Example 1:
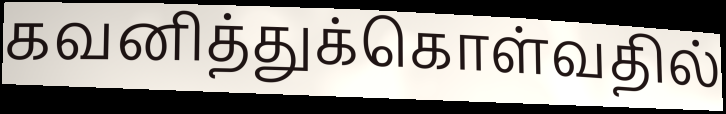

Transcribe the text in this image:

கவனித்துக்கொள்வதில்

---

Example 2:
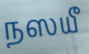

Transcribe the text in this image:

நஸயீ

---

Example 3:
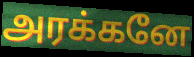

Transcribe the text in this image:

அரக்கனே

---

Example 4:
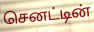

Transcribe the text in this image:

செனட்டின்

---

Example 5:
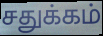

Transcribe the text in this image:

சதுக்கம்